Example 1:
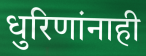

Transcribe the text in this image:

धुरिणांनाही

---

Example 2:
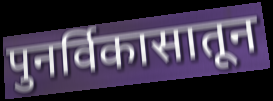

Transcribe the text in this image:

पुनर्विकासातून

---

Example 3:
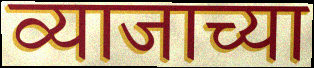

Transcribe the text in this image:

व्याजाच्या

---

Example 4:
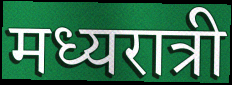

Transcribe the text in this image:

मध्यरात्री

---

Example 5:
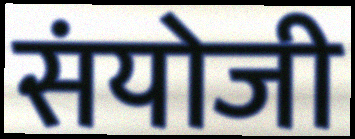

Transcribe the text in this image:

संयोजी